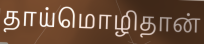
தாய்மொழிதான்